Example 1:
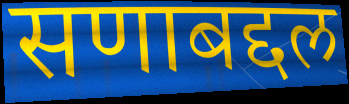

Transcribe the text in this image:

सणाबद्दल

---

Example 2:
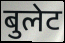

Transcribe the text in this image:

बुलेट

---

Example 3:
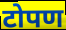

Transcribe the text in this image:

टोपण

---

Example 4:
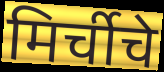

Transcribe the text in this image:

मिर्चीचे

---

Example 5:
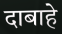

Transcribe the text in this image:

दाबाहे